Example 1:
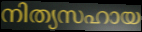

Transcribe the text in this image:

നിത്യസഹായ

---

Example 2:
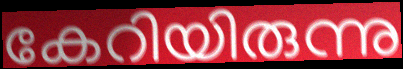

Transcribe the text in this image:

കേറിയിരുന്നു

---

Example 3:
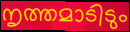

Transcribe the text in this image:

നൃത്തമാടിടും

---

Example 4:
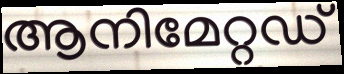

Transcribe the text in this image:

ആനിമേറ്റഡ്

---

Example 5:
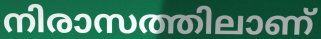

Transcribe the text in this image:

നിരാസത്തിലാണ്